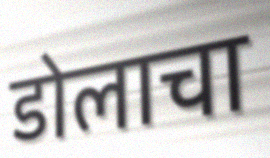
डोलाचा